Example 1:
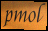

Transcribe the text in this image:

pmol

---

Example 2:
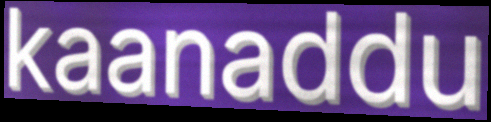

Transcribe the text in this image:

kaanaddu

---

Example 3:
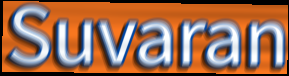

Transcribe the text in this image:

Suvaran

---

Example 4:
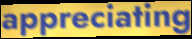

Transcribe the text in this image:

appreciating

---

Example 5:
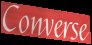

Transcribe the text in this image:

Converse